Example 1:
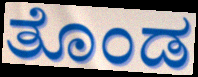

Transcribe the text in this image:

ತೊಂಡ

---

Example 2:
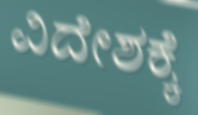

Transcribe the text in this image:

ವಿದೇಶಕ್ಕೆ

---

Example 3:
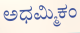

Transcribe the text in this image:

ಅಧಮ್ಮಿಕಂ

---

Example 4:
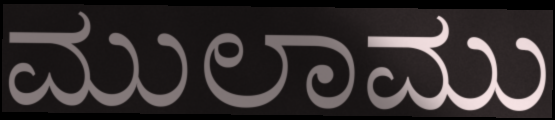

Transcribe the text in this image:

ಮುಲಾಮು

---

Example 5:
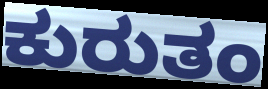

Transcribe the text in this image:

ಕುರುತಂ